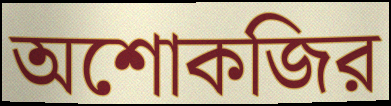
অশোকজির